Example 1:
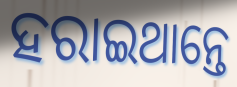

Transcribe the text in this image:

ହରାଇଥାନ୍ତେ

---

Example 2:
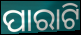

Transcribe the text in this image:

ପାରାଟି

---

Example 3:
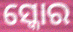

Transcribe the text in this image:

ସ୍କୋର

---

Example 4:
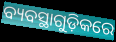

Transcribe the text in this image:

ବ୍ୟବସ୍ଥାଗୁଡ଼ିକରେ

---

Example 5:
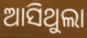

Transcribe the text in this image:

ଆସିଥୁଲା